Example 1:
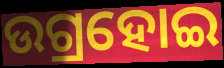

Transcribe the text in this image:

ଉଗ୍ରହୋଇ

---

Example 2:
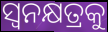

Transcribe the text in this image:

ସ୍ୱନକ୍ଷତ୍ରକୁ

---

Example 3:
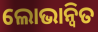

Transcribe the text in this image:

ଲୋଭାନ୍ୱିତ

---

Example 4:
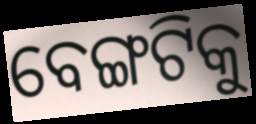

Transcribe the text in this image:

ବେଙ୍ଗଟିକୁ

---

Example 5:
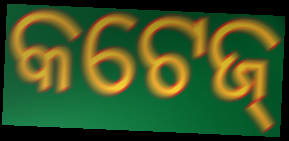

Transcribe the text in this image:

କଟେଜ୍